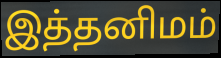
இத்தனிமம்